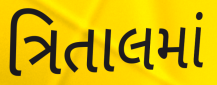
ત્રિતાલમાં